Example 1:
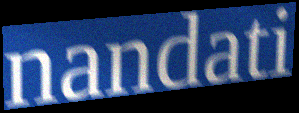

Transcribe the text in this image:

nandati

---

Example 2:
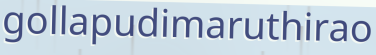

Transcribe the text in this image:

gollapudimaruthirao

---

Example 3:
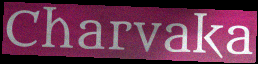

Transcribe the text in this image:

Charvaka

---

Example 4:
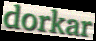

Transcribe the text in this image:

dorkar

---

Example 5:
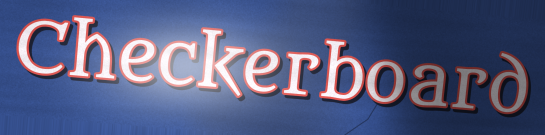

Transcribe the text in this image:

Checkerboard